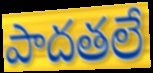
పాదతలే